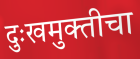
दुःखमुक्तीचा